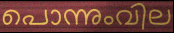
പൊന്നുംവില